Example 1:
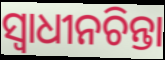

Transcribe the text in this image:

ସ୍ୱାଧୀନଚିନ୍ତା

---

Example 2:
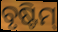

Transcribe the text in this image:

ବୃଷ୍ଟିମ୍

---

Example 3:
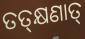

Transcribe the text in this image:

ତତ୍କ୍ଷଣାତ୍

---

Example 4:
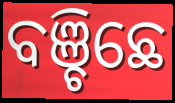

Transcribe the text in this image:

ବଞ୍ଚିଛେ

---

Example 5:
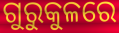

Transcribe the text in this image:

ଗୁରୁକୁଳରେ